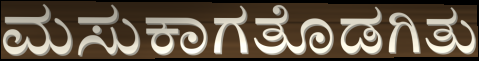
ಮಸುಕಾಗತೊಡಗಿತು